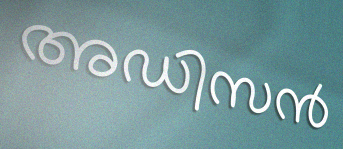
അഡിസൻ